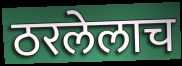
ठरलेलाच